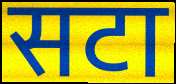
सटा